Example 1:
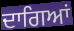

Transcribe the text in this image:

ਦਾਗਿਆਂ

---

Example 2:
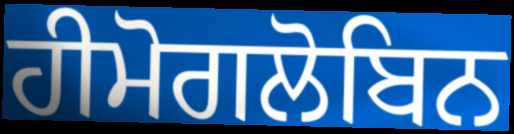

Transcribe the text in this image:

ਹੀਮੋਗਲੋਬਿਨ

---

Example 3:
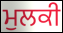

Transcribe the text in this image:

ਮੁਲਕੀ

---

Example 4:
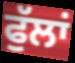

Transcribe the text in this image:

ਫੁੱਲਾਂ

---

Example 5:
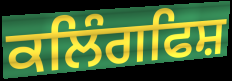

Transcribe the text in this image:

ਕਲਿੰਗਫਿਸ਼